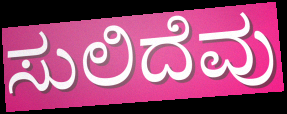
ಸುಲಿದೆವು